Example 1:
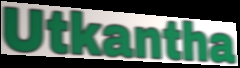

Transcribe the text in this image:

Utkantha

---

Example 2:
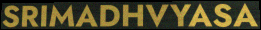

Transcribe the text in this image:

SRIMADHVYASA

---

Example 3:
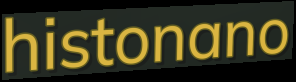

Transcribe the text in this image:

histonano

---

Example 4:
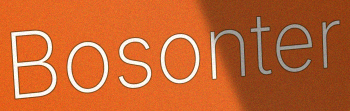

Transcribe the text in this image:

Bosonter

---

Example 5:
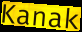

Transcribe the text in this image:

Kanak